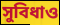
সুবিধাও